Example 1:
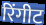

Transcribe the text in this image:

रिंगीट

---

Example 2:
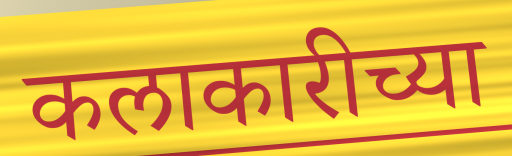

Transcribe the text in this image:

कलाकारीच्या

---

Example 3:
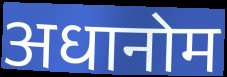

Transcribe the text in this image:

अधानोम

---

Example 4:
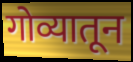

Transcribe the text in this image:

गोव्यातून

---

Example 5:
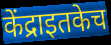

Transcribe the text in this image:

केंद्राइतकेच